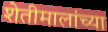
शेतीमालांच्या